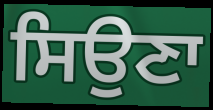
ਸਿਉਣਾ